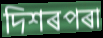
দিশৰপৰা